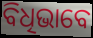
ବିଧିଭାବେ